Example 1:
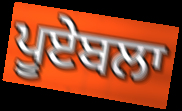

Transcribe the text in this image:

ਪੂਏਬਲਾ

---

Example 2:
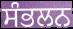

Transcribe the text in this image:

ਸੰਭਲਨ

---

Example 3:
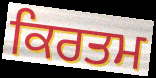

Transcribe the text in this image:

ਕਿਰਤਮ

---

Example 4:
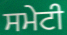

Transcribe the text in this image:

ਸਮੇਟੀ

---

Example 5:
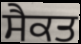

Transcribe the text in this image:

ਸੈਕਤ